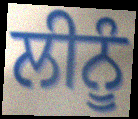
ਲੀਨੂੰ